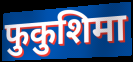
फुकुशिमा